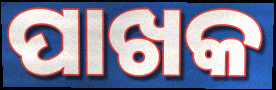
ପାଖକ